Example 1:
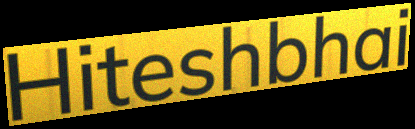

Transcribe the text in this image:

Hiteshbhai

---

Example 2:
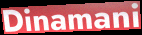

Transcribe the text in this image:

Dinamani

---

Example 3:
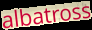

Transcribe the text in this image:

albatross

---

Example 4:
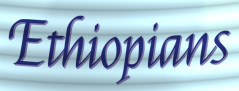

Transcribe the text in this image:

Ethiopians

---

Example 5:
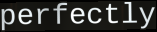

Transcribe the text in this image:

perfectly